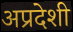
अप्रदेशी